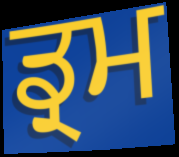
ਡ੍ਰਮ